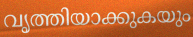
വൃത്തിയാക്കുകയും